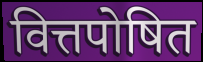
वित्तपोषित